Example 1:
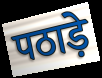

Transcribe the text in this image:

पठाड़े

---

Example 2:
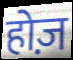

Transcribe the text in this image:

होज़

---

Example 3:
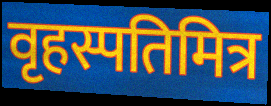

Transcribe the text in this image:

वृहस्पतिमित्र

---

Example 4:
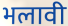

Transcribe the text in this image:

भलावी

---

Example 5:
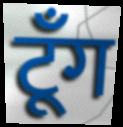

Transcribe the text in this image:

टूँग